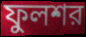
ফুলশর